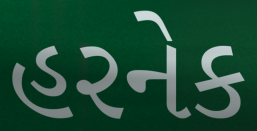
હરનેક